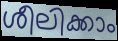
ശീലിക്കാം